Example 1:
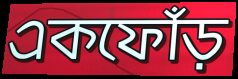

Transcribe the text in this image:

একফোঁড়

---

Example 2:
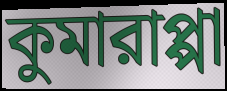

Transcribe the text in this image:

কুমারাপ্পা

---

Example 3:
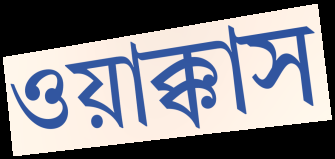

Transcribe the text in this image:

ওয়াক্কাস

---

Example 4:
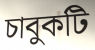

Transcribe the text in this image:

চাবুকটি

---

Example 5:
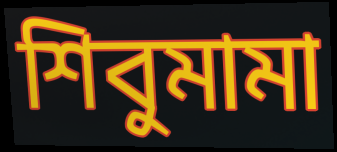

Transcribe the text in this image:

শিবুমামা